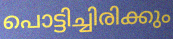
പൊട്ടിച്ചിരിക്കും